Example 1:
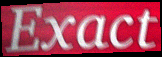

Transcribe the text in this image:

Exact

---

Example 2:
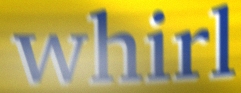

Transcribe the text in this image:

whirl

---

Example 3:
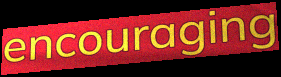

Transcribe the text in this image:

encouraging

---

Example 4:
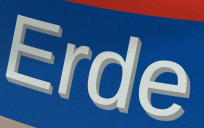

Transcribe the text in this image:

Erde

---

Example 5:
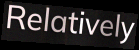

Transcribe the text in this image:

Relatively